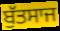
ਬੁੱਤਸਾਜ